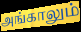
அங்காலும்